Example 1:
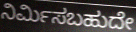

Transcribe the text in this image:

ನಿರ್ಮಿಸಬಹುದೇ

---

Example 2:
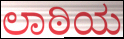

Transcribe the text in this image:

ಲಾಠಿಯ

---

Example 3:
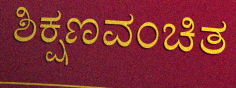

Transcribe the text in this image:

ಶಿಕ್ಷಣವಂಚಿತ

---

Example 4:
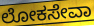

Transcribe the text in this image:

ಲೋಕಸೇವಾ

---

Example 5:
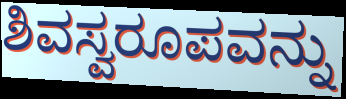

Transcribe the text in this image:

ಶಿವಸ್ವರೂಪವನ್ನು